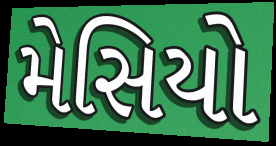
મેસિયો